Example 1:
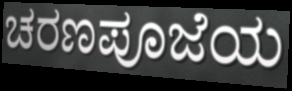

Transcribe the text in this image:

ಚರಣಪೂಜೆಯ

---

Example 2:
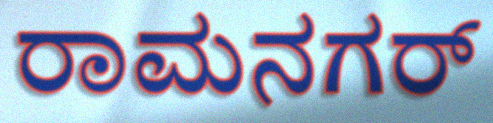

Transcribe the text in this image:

ರಾಮನಗರ್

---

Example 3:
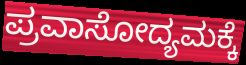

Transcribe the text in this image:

ಪ್ರವಾಸೋದ್ಯಮಕ್ಕೆ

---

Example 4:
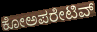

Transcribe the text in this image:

ಕೋಅಪರೇಟಿವ್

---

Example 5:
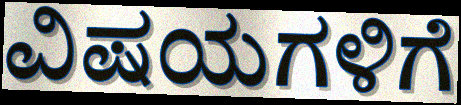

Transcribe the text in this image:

ವಿಷಯಗಳಿಗೆ